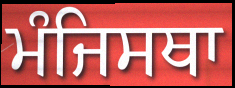
ਮੰਜਿਸਥਾ